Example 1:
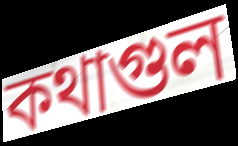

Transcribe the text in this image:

কথাগুল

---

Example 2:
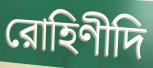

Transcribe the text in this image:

রোহিণীদি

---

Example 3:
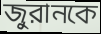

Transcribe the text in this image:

জুরানকে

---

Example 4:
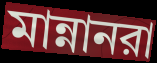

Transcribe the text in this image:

মান্নানরা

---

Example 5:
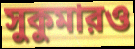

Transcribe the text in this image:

সুকুমারও